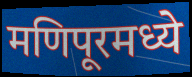
मणिपूरमध्ये